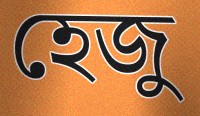
হেজু